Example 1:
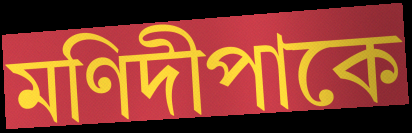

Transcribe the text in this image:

মণিদীপাকে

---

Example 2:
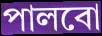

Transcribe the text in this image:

পালবো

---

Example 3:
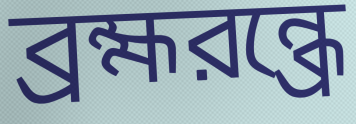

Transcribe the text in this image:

ব্রহ্মরন্ধ্রে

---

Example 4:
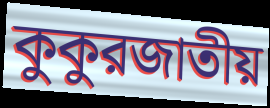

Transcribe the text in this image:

কুকুরজাতীয়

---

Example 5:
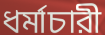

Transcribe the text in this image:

ধর্মাচারী